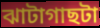
ঝাটাগাছটা